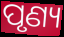
ପୃଣ୍ୟ